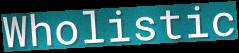
Wholistic